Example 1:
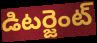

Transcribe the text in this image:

డిటర్జెంట్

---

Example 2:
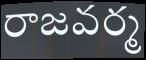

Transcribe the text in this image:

రాజవర్మ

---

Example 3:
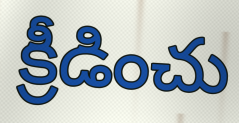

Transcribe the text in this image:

క్రీడించు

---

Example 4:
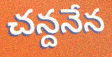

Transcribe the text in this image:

చన్దనేన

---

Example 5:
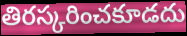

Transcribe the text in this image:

తిరస్కరించకూడదు